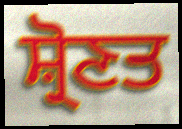
ਸ਼੍ਰੋਣਤ